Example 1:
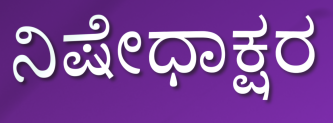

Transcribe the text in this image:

ನಿಷೇಧಾಕ್ಷರ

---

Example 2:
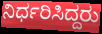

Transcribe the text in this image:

ನಿರ್ಧರಿಸಿದ್ದರು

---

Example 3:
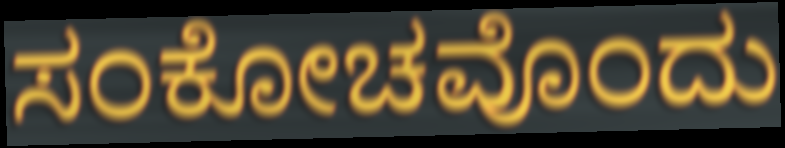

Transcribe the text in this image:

ಸಂಕೋಚವೊಂದು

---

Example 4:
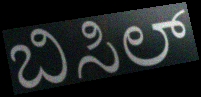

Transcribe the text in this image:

ಬಿಸಿಲ್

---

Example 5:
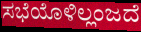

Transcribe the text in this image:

ಸಭೆಯೊಳಿಲ್ಲಂಜದೆ